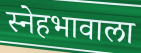
स्नेहभावाला